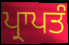
ਪ੍ਰਾਪਤੰ